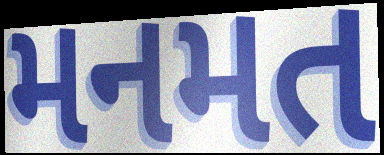
મનમત